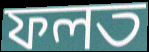
ফলত